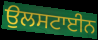
ਉਲਸਟਾਈਨ